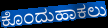
ಕೊಂದುಹಾಕಲು